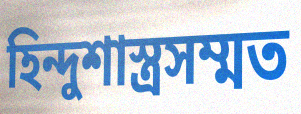
হিন্দুশাস্ত্রসম্মত